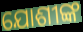
ଯୋଶୀଙ୍କ